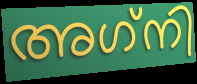
അഗ്‌നി